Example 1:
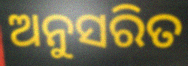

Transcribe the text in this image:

ଅନୁସରିତ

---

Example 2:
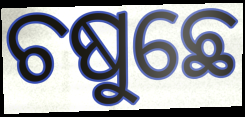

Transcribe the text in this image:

ଚଷୁଛେ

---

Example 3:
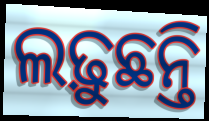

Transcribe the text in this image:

ଲଢ଼ୁଛନ୍ତି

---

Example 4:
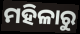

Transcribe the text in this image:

ମହିଳାରୁ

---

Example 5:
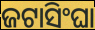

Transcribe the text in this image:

ଜଟାସିଂଘା